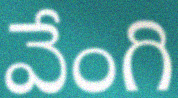
వేంగి